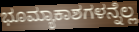
ಭೂಮ್ಯಾಕಾಶಗಳನ್ನೆಲ್ಲ